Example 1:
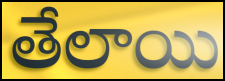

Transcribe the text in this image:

తేలాయి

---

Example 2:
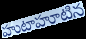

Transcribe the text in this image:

హుటాహూటిన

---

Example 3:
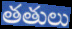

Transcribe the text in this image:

తతులు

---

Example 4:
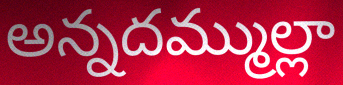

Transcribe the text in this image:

అన్నదమ్ముల్లా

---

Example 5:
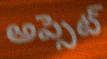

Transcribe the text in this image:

అప్సెట్